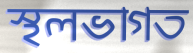
স্থলভাগত